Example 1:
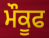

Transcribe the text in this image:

ਮੌਕੂਫ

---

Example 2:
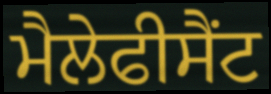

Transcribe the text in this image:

ਮੈਲੇਫੀਸੈਂਟ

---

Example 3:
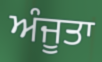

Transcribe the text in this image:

ਅੰਜੂਤਾ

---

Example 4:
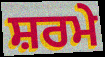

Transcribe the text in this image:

ਸ਼ਰਮੇ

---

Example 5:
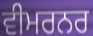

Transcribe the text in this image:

ਵੀਮਰਨਰ